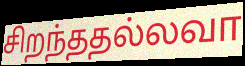
சிறந்ததல்லவா